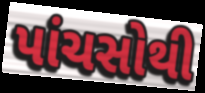
પાંચસોથી